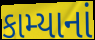
કામ્યાનાં